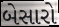
બેસારો